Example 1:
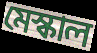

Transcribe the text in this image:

মেস্কাল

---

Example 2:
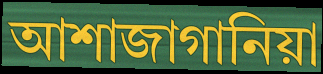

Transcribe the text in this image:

আশাজাগানিয়া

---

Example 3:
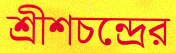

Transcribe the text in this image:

শ্রীশচন্দ্রের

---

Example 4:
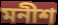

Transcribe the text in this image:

মনীশ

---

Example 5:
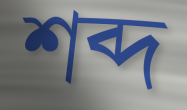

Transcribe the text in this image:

শব্দ